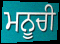
ਮਨੂਚੀ